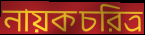
নায়কচরিত্র